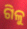
ଗିଳୁ